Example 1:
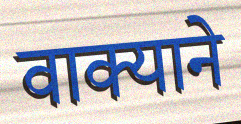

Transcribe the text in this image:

वाक्याने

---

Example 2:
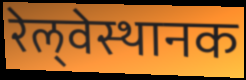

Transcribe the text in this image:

रेल्वेस्थानक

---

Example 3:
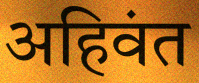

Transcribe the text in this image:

अहिवंत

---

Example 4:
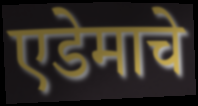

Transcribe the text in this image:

एडेमाचे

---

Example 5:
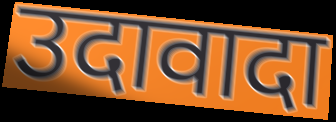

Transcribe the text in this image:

उदावादा